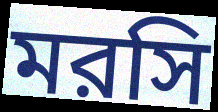
মরসি